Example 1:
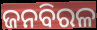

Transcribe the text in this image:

ଜନବିରଳ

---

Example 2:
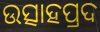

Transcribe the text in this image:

ଉତ୍ସାହପ୍ରଦ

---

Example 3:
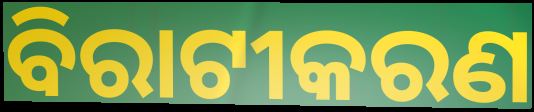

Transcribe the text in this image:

ବିରାଟୀକରଣ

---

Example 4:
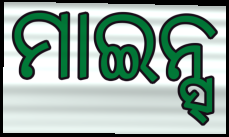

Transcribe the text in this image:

ମାଇନ୍ସ୍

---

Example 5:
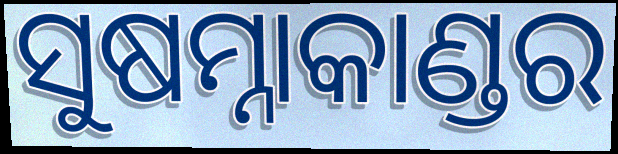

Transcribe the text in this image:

ସୁଷମ୍ନାକାଣ୍ଡର